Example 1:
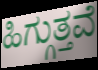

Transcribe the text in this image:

ಹಿಗ್ಗುತ್ತವೆ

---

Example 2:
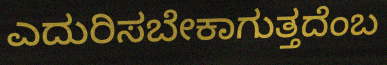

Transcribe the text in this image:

ಎದುರಿಸಬೇಕಾಗುತ್ತದೆಂಬ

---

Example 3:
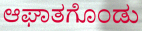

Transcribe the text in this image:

ಆಘಾತಗೊಂಡು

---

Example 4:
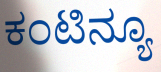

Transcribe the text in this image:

ಕಂಟಿನ್ಯೂ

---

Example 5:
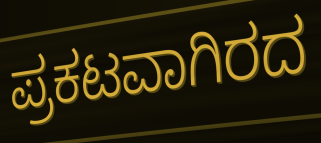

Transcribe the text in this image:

ಪ್ರಕಟವಾಗಿರದ